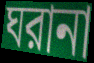
ঘরানা